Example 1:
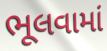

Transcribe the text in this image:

ભૂલવામાં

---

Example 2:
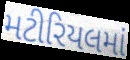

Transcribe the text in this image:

મટીરિયલમાં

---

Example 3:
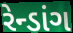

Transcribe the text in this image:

રેન્ડાંગ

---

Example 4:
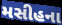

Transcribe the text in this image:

મસીહના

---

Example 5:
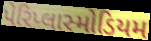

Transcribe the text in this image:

પેરિપ્લાસ્મોડિયમ